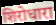
शिरोधारा